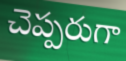
చెప్పరుగా